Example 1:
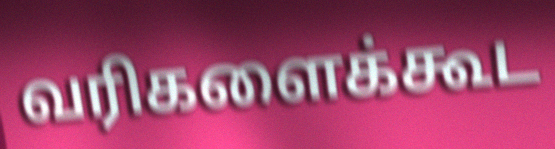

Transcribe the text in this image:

வரிகளைக்கூட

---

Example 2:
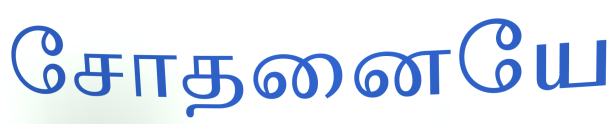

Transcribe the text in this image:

சோதனையே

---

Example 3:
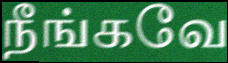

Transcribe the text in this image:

நீங்கவே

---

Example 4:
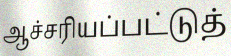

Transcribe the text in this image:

ஆச்சரியப்பட்டுத்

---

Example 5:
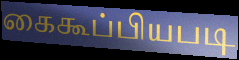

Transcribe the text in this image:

கைகூப்பியபடி